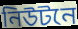
নিউটনে